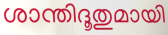
ശാന്തിദൂതുമായി